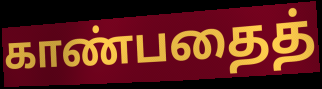
காண்பதைத்